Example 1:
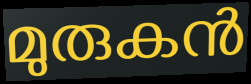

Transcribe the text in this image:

മുരുകൻ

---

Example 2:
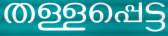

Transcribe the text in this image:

തള്ളപ്പെട്ട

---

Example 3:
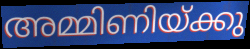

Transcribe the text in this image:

അമ്മിണിയ്ക്കു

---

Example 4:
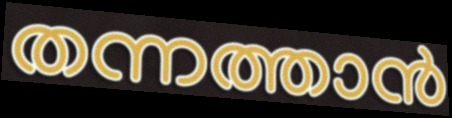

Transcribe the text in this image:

തന്നത്താൻ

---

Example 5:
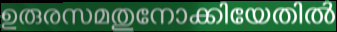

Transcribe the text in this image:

ഉരുരസമതുനോക്കിയേതിൽ